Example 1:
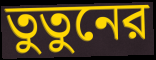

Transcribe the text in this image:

তুতুনের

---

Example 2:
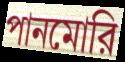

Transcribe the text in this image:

পানমোরি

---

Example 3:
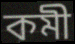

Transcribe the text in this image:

কমী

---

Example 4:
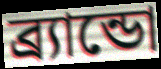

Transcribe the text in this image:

ব্র্যান্ডো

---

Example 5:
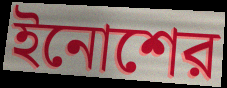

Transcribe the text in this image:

ইনোশের